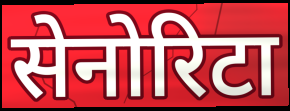
सेनोरिटा